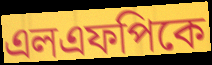
এলএফপিকে